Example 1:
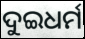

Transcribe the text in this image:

ଦୁଇଧର୍ମ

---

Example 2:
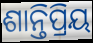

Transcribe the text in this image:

ଶାନ୍ତିପ୍ରିୟ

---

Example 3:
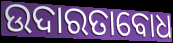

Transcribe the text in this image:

ଉଦାରତାବୋଧ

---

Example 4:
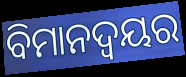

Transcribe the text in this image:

ବିମାନଦ୍ବୟର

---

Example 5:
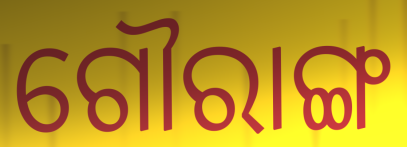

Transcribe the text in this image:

ଗୌରାଙ୍ଗ